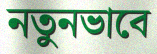
নতুনভাবে